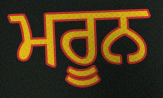
ਮਰੂਨ